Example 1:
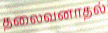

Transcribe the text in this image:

தலைவனாதல்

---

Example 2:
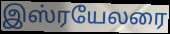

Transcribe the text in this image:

இஸ்ரயேலரை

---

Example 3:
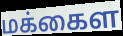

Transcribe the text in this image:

மக்கைள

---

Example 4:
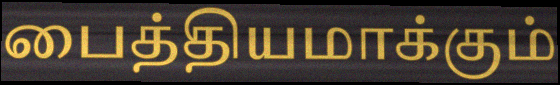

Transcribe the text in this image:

பைத்தியமாக்கும்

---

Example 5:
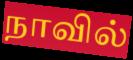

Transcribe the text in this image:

நாவில்